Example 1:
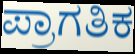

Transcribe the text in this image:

ಪ್ರಾಗತಿಕ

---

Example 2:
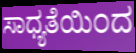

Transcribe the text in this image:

ಸಾಧ್ಯತೆಯಿಂದ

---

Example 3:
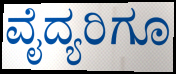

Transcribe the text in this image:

ವೈದ್ಯರಿಗೂ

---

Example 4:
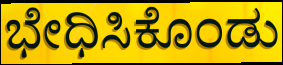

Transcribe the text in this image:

ಭೇಧಿಸಿಕೊಂಡು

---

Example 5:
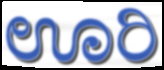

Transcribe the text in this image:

ಊರಿ